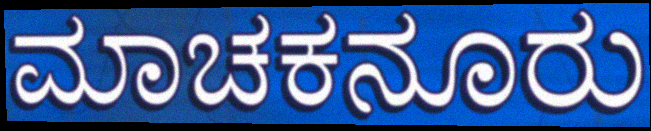
ಮಾಚಕನೂರು